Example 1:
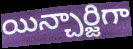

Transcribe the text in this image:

యిన్చార్జిగా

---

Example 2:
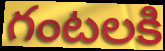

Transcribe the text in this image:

గంటలకి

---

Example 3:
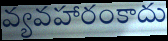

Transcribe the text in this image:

వ్యవహారంకాదు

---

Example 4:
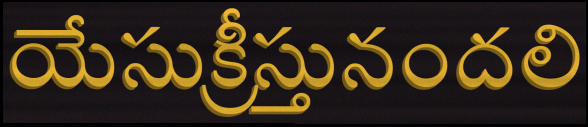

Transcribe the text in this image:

యేసుక్రీస్తునందలి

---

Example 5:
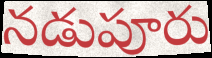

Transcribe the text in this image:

నడుపూరు